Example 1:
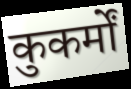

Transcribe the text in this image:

कुकर्मों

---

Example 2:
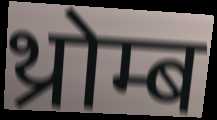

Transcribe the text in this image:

थ्रोम्ब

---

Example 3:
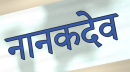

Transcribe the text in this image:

नानकदेव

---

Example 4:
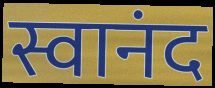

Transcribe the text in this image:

स्वानंद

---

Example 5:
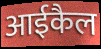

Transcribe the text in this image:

आईकैल